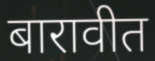
बारावीत